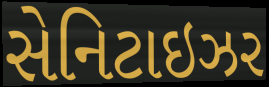
સેનિટાઇઝર